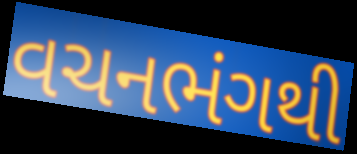
વચનભંગથી